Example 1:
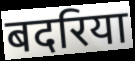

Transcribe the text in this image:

बदरिया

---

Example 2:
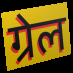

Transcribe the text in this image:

ग्रेल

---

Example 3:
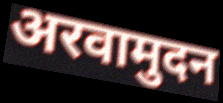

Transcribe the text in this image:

अरवामुदन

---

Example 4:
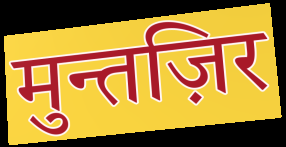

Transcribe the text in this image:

मुन्तज़िर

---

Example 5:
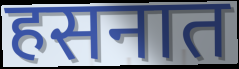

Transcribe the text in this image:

हसनात